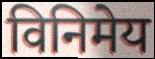
विनिमेय